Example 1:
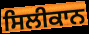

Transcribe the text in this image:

ਸਿਲੀਕਾਨ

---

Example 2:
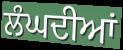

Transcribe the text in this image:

ਲੰਘਦੀਆਂ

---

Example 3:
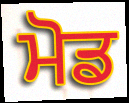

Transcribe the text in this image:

ਮੋਡ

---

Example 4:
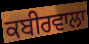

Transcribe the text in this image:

ਕਬੀਰਵਾਲਾ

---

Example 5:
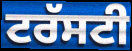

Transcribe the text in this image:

ਟਰੱਸਟੀ